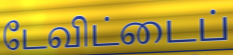
டேவிட்டைப்